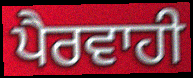
ਪੈਰਵਾਹੀ